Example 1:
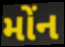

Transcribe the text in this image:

મોંન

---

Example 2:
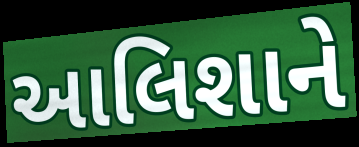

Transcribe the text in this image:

આલિશાને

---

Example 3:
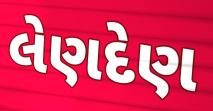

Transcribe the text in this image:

લેણદેણ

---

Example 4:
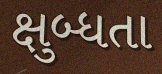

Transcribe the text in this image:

ક્ષુબ્ધતા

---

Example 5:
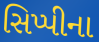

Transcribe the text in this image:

સિપ્પીના